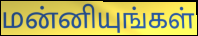
மன்னியுங்கள்